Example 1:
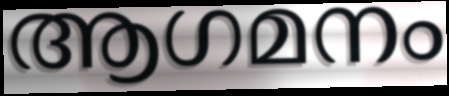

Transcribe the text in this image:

ആഗമനം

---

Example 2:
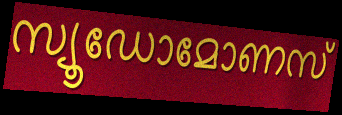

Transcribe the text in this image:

സ്യൂഡോമോണസ്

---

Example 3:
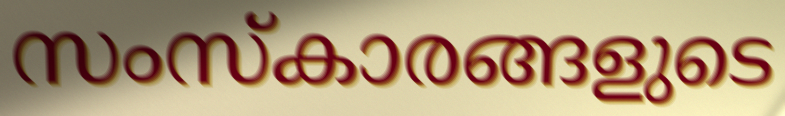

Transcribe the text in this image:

സംസ്കാരങ്ങളുടെ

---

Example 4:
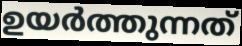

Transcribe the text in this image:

ഉയർത്തുന്നത്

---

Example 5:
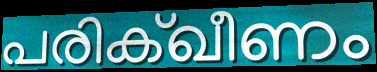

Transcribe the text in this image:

പരിക്ഖീണം